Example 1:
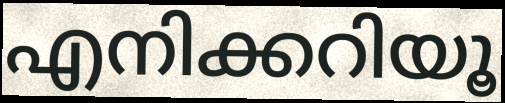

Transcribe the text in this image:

എനിക്കറിയൂ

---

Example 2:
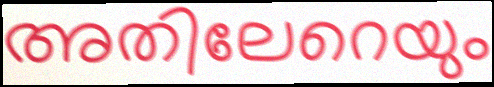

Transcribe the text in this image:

അതിലേറെയും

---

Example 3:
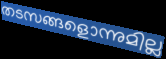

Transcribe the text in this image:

തടസങ്ങളൊന്നുമില്ല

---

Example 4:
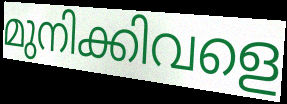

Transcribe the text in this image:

മുനിക്കിവളെ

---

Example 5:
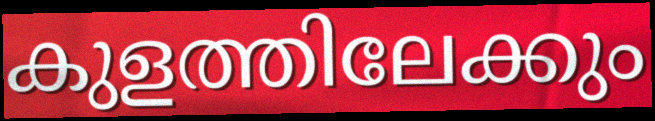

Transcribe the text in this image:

കുളത്തിലേക്കും